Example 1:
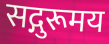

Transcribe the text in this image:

सद्गुरूमय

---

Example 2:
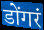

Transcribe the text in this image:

डोंगरं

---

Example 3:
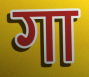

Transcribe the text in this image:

गा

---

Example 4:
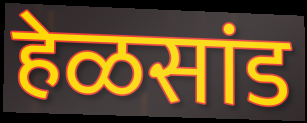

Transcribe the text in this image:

हेळसांड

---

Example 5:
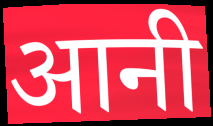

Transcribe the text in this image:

आनी